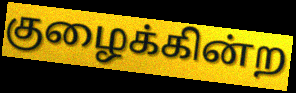
குழைக்கின்ற